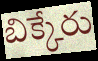
బిక్కేరు